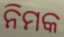
ନିମକ